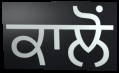
ਕਾਲੋਂ